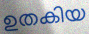
ഉതകിയ